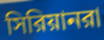
সিরিয়ানরা